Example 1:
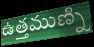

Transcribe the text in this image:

ఉత్తముణ్ని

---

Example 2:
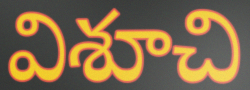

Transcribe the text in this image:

విశూచి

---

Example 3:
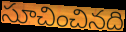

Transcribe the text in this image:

సూచించినది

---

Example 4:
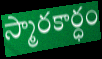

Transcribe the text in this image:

స్మారకార్ధం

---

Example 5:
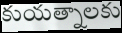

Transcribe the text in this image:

కుయత్నాలకు